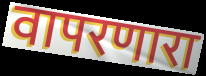
वापरणारा